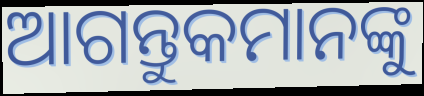
ଆଗନ୍ତୁକମାନଙ୍କୁ